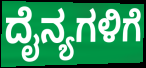
ದೈನ್ಯಗಳಿಗೆ